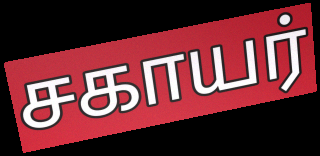
சகாயர்